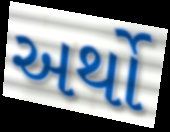
અર્થો